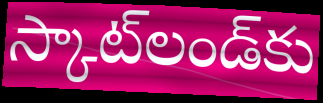
స్కాట్‌లండ్‌కు